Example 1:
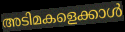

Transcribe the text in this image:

അടിമകളെക്കാൾ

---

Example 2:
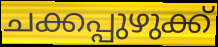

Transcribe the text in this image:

ചക്കപ്പുഴുക്ക്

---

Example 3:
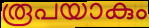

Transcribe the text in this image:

രൂപയാകും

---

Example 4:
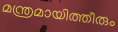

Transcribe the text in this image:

മന്ത്രമായിത്തീരും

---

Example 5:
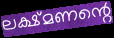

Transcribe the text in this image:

ലക്ഷ്മണന്റെ